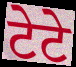
टेटे